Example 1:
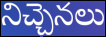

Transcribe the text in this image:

నిచ్చెనలు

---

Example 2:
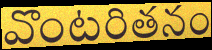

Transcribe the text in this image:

వొంటరితనం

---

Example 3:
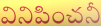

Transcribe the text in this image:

వినిపించనీ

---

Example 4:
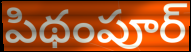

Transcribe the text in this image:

పిథంపూర్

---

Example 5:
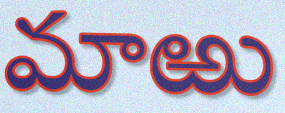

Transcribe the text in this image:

మాఱు